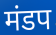
मंडप